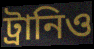
ট্রানিও